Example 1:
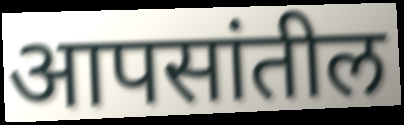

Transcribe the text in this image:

आपसांतील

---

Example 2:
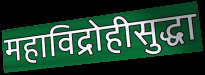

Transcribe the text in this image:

महाविद्रोहीसुद्धा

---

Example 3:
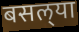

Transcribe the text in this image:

बसल्या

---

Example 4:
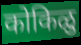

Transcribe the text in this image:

कोकिळु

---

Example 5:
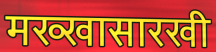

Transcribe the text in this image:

मख्खासारखी